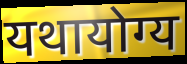
यथायोग्य